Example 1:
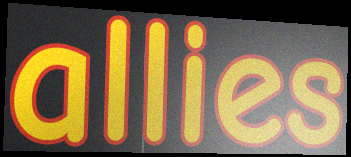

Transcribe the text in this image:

allies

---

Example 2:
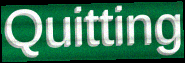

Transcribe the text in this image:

Quitting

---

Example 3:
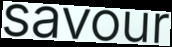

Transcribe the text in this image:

savour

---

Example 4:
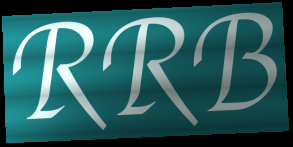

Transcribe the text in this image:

RRB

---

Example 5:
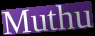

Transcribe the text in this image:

Muthu